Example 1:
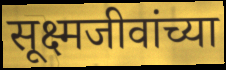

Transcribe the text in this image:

सूक्ष्मजीवांच्या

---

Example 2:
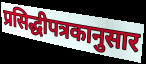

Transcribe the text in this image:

प्रसिद्धीपत्रकानुसार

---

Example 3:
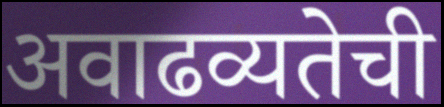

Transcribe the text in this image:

अवाढव्यतेची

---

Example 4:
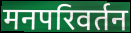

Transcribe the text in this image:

मनपरिवर्तन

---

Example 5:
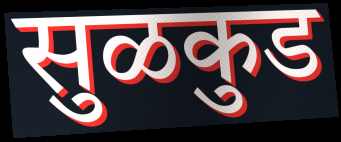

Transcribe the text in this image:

सुळकुड